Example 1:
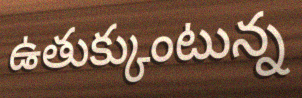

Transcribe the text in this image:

ఉతుక్కుంటున్న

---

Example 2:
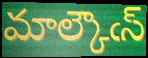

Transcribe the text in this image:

మాల్కౌఁస్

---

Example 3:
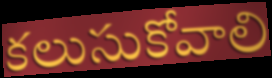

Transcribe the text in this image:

కలుసుకోవాలి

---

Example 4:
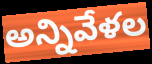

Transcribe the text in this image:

అన్నివేళల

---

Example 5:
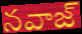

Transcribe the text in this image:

నవాజ్